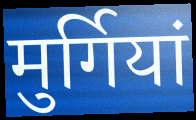
मुर्गियां